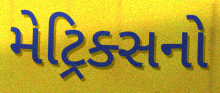
મેટ્રિક્સનો